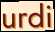
urdi